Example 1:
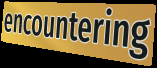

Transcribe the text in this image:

encountering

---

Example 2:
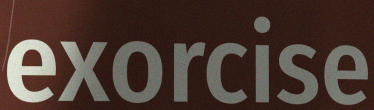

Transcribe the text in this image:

exorcise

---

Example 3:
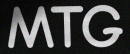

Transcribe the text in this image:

MTG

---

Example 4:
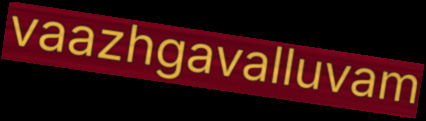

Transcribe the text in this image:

vaazhgavalluvam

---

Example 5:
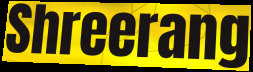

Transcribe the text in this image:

Shreerang